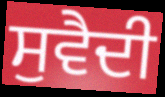
ਸੁਵੈਦੀ